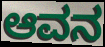
ಆವನ